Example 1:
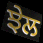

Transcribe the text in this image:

ਝੇਲ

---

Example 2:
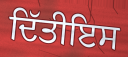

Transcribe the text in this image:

ਦਿੱਤੀਇਸ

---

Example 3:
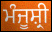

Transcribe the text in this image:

ਮੰਜੂਸ਼੍ਰੀ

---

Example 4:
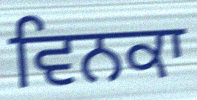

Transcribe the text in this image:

ਵਿਨਕਾ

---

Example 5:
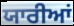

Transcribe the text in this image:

ਯਾਰੀਆਂ